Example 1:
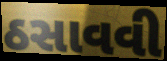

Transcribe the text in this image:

ઠસાવવી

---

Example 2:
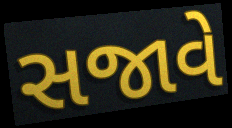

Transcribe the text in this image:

સજાવે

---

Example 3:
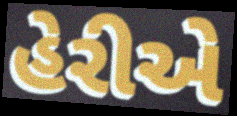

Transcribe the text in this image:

હેરીએ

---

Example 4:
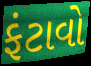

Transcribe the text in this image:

ફંટાવો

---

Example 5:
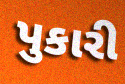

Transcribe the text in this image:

પુકારી